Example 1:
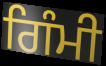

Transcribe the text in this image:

ਗਿੰਮੀ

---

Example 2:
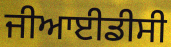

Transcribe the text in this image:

ਜੀਆਈਡੀਸੀ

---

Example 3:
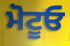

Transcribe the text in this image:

ਮੋਟੂਓ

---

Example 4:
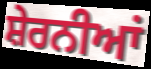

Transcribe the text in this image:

ਸ਼ੇਰਨੀਆਂ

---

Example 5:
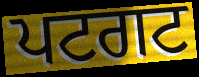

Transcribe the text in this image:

ਪਟਗਟ